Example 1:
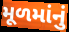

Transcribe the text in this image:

મૂળમાંનું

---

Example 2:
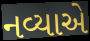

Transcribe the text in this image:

નવ્યાએ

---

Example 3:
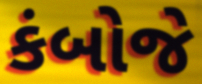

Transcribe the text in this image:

કંબોજે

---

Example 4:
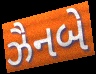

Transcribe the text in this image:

ઝૈનબે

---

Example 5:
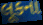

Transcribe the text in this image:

લૂકના